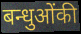
बन्धुओंकी